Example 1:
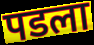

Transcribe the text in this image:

पडला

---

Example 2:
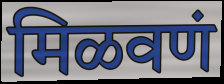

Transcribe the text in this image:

मिळवणं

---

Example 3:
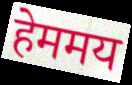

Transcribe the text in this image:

हेममय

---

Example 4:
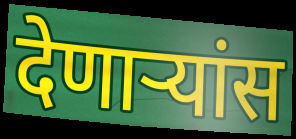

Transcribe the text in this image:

देणाऱ्यांस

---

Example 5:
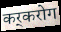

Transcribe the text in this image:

कर्करोग